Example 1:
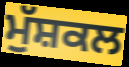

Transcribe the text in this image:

ਮੁੱਸ਼ਕਲ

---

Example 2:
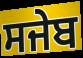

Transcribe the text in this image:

ਸਜੇਬ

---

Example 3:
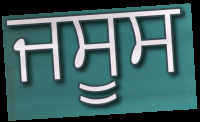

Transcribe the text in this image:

ਜਸੂਸ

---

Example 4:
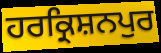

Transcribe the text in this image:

ਹਰਕ੍ਰਿਸ਼ਨਪੁਰ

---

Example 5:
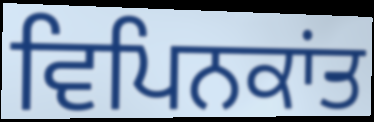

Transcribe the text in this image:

ਵਿਪਿਨਕਾਂਤ